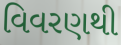
વિવરણથી